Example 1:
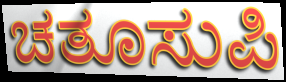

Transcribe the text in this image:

ಚತೂಸುಪಿ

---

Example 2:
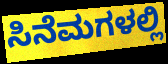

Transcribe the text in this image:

ಸಿನೆಮಗಳಲ್ಲಿ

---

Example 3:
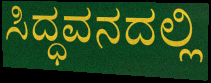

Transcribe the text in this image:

ಸಿದ್ಧವನದಲ್ಲಿ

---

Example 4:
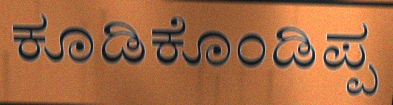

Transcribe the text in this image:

ಕೂಡಿಕೊಂಡಿಪ್ಪ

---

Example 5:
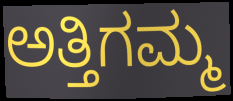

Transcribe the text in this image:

ಅತ್ತಿಗಮ್ಮ